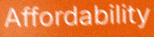
Affordability